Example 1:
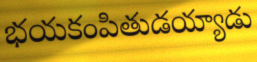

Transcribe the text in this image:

భయకంపితుడయ్యాడు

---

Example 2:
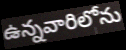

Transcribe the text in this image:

ఉన్నవారిలోను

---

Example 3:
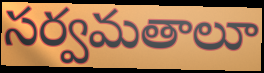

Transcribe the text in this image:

సర్వమతాలూ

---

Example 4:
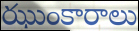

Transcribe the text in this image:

ఝుంకారాలు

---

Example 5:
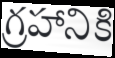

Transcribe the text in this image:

గ్రహానికి